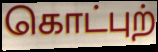
கொட்புற்